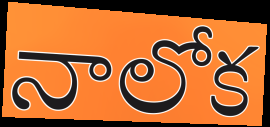
నాలోక